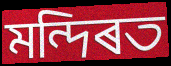
মন্দিৰত